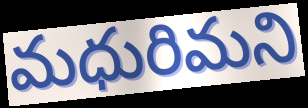
మధురిమని